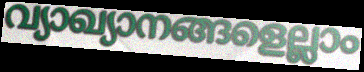
വ്യാഖ്യാനങ്ങളെല്ലാം